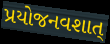
પ્રયોજનવશાત્